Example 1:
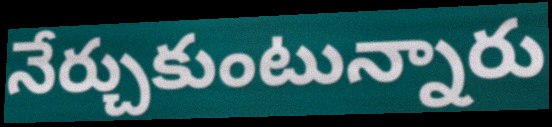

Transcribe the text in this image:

నేర్చుకుంటున్నారు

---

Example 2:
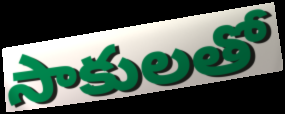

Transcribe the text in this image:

సాకులతో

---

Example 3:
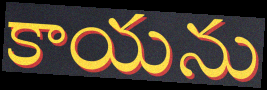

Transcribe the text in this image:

కాయను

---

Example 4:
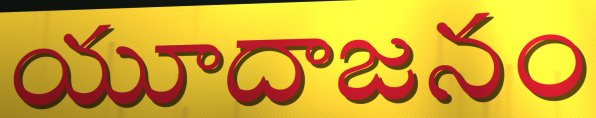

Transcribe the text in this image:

యూదాజనం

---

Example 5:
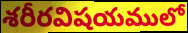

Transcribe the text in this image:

శరీరవిషయములో